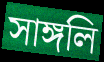
সাঙ্গলি